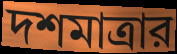
দশমাত্রার